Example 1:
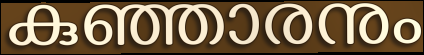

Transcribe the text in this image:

കുഞ്ഞാരനും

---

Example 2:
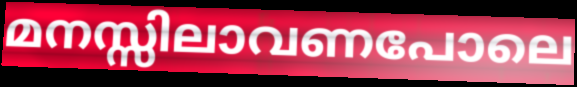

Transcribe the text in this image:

മനസ്സിലാവണപോലെ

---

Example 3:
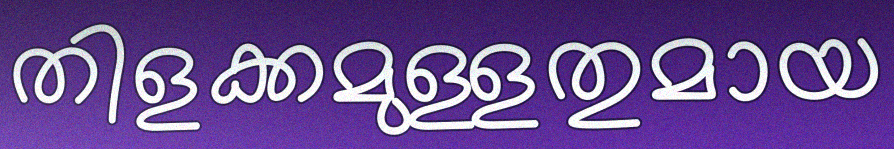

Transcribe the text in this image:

തിളക്കമുള്ളതുമായ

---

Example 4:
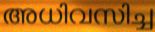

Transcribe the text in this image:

അധിവസിച്ച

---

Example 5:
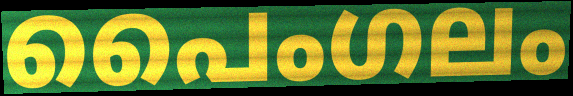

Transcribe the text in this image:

പൈംഗലം